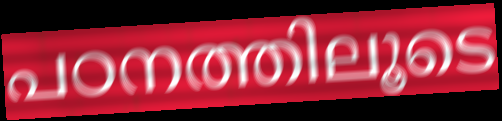
പഠനത്തിലൂടെ